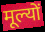
मूल्यों